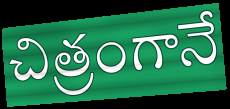
చిత్రంగానే